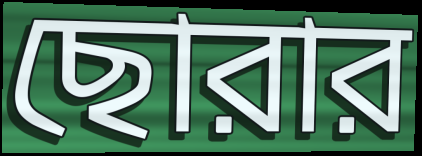
ছোরার